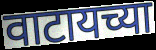
वाटायच्या